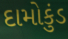
દામોકુંડ